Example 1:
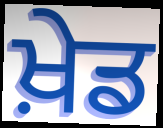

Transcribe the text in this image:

ਖ਼ੇਡ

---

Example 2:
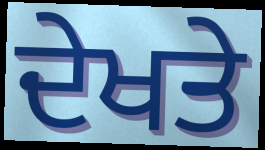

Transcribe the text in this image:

ਦੇਖਤੇ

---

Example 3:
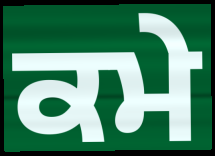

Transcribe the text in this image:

ਕਮੇ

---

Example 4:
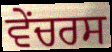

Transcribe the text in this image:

ਵੇਂਚਰਸ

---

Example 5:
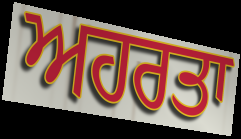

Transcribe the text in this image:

ਅਹਰਤਾ